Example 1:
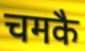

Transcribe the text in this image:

चमकै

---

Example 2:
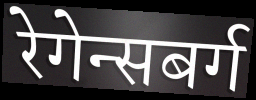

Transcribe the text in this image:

रेगेन्सबर्ग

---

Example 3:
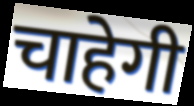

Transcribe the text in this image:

चाहेगी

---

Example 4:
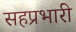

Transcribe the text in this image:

सहप्रभारी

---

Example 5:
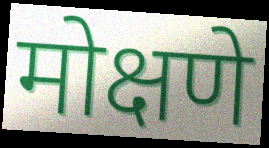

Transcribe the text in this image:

मोक्षणे